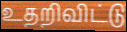
உதறிவிட்டு